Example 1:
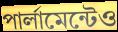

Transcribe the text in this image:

পার্লামেন্টেও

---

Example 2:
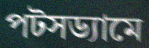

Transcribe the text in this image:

পটসড্যামে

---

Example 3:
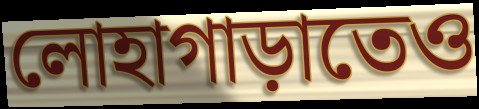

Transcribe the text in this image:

লোহাগাড়াতেও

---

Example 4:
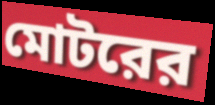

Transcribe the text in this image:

মোটরের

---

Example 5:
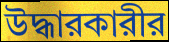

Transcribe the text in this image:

উদ্ধারকারীর